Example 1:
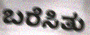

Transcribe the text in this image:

ಬರೆಸಿತು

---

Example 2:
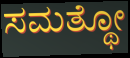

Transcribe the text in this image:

ಸಮತ್ಥೋ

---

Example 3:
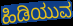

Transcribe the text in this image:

ಹಿಡಿಯುವ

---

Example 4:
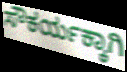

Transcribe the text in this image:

ಸೌಕರ್ಯಕ್ಕಾಗಿ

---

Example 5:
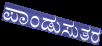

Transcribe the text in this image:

ಪಾಂಡುಸುತರ